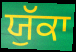
ਯੁੱਕਾ